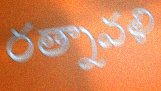
రత్నావళి